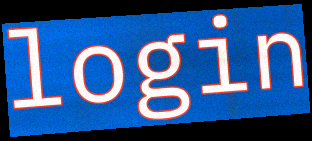
login